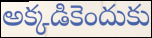
అక్కడికెందుకు